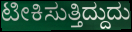
ಟೀಕಿಸುತ್ತಿದ್ದುದು